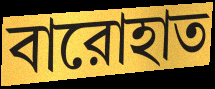
বারোহাত